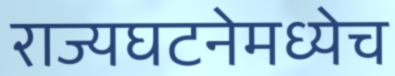
राज्यघटनेमध्येच